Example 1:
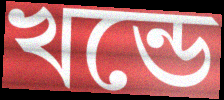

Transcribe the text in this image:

খন্ডে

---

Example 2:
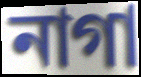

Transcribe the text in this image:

নাগা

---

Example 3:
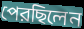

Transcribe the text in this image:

পেরছিলেন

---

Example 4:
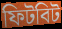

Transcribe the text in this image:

ফিটবিট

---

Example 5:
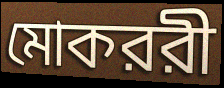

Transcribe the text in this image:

মোকররী